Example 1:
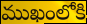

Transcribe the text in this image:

ముఖంలోకి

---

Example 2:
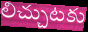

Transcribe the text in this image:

లిచ్చుటకు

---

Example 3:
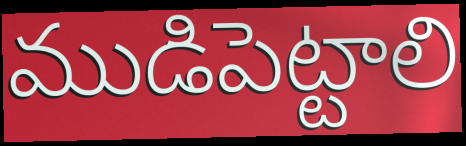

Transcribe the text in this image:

ముడిపెట్టాలి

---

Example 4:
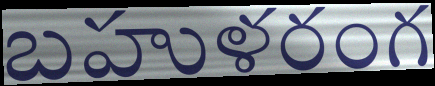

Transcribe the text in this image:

బహుళరంగ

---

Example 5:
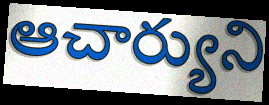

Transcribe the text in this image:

ఆచార్యుని